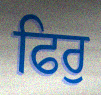
ਫਿਰੁ